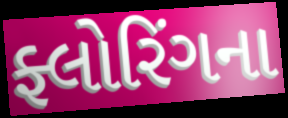
ફ્લોરિંગના